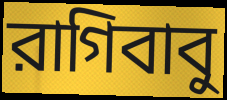
রাগিবাবু